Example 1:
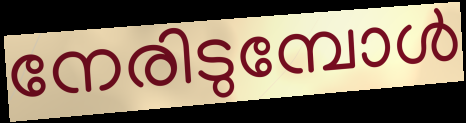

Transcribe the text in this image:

നേരിടുമ്പോൾ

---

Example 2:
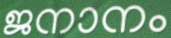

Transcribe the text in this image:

ജനാനം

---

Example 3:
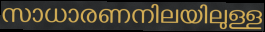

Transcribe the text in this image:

സാധാരണനിലയിലുള്ള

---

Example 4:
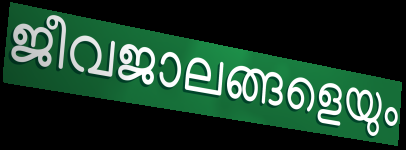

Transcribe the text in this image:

ജീവജാലങ്ങളെയും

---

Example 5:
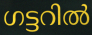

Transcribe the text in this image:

ഗട്ടറിൽ